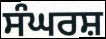
ਸੰਘਰਸ਼